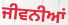
ਜੀਵਨੀਆਂ